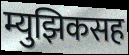
म्युझिकसह